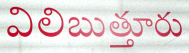
విలిబుత్తూరు